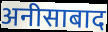
अनीसाबाद